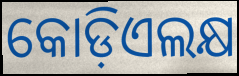
କୋଡ଼ିଏଲକ୍ଷ